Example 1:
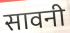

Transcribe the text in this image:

सावनी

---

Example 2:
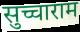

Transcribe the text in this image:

सुच्चाराम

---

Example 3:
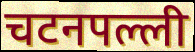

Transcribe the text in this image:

चटनपल्ली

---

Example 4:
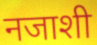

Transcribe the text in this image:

नजाशी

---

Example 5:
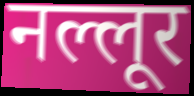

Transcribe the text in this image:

नल्लूर